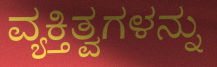
ವ್ಯಕ್ತಿತ್ವಗಳನ್ನು